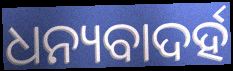
ଧନ୍ୟବାଦର୍ହ